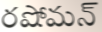
రషోమన్